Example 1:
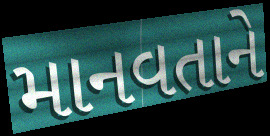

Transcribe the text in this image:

માનવતાને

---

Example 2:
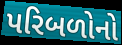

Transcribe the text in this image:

પરિબળોનો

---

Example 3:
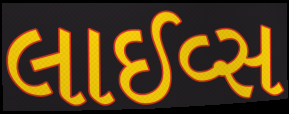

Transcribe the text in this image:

લાઈવ્સ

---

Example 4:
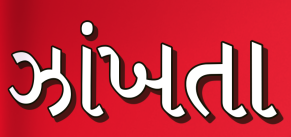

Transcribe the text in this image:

ઝાંખતા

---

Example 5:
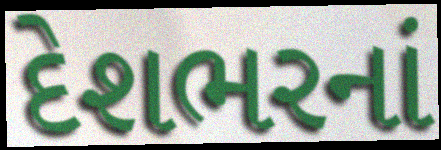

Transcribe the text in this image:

દેશભરનાં